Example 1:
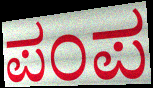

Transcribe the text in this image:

ಪಂಪ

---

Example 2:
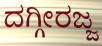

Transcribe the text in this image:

ದಗ್ಗೀರಜ್ಜ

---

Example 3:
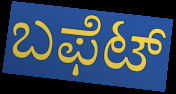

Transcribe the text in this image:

ಬಫೆಟ್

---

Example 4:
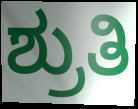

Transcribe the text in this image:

ಶ್ರುತಿ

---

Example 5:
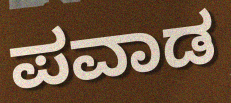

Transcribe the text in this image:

ಪವಾಡ